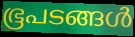
ഭൂപടങ്ങൾ